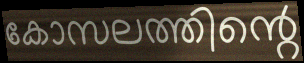
കോസലത്തിന്റെ